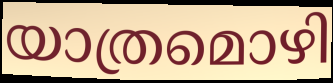
യാത്രമൊഴി